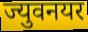
ज्युवनयर